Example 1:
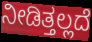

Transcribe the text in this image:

ನೀಡಿತ್ತಲ್ಲದೆ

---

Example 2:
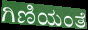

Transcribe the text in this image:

ಗಿಣಿಯಂತೆ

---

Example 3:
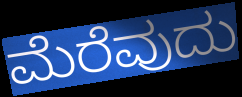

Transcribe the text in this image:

ಮೆರೆವುದು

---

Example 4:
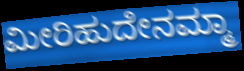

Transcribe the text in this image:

ಮೀರಿಹುದೇನಮ್ಮಾ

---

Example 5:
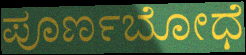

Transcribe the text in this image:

ಪೂರ್ಣಬೋಧೆ